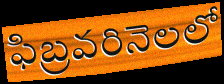
ఫిబ్రవరినెలలో